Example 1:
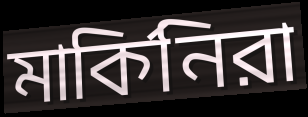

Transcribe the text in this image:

মার্কিনিরা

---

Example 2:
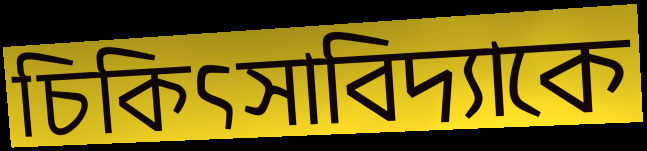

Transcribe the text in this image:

চিকিৎসাবিদ্যাকে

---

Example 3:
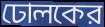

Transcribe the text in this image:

ঢোলকের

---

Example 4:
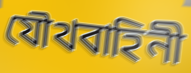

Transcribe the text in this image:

যৌথবাহিনী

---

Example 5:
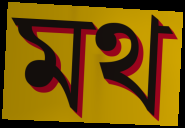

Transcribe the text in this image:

মথ